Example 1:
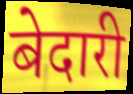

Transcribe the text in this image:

बेदारी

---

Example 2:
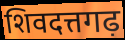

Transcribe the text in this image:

शिवदत्तगढ़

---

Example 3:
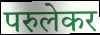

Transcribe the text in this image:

परुलेकर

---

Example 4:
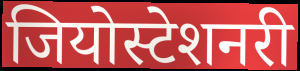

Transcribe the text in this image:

जियोस्टेशनरी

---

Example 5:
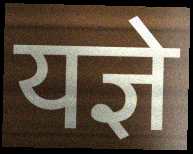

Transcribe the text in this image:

यज्ञे